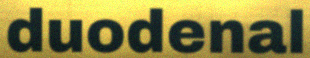
duodenal